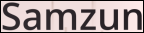
Samzun